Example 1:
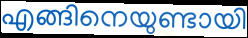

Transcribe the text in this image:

എങ്ങിനെയുണ്ടായി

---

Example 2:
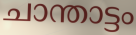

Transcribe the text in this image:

ചാന്താട്ടം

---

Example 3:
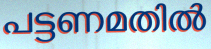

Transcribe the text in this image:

പട്ടണമതിൽ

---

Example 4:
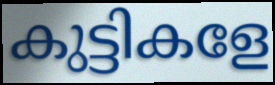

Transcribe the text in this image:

കുട്ടികളേ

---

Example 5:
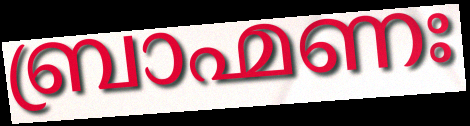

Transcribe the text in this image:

ബ്രാഹ്മണഃ